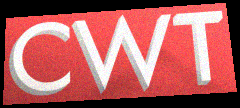
CWT